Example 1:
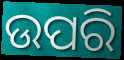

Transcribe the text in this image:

ଉପରି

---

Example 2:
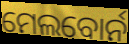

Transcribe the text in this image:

ମେଲବୋର୍ନ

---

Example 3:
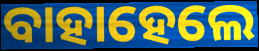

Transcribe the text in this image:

ବାହାହେଲେ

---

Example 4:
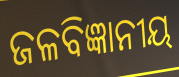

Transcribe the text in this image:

ଜଳବିଜ୍ଞାନୀୟ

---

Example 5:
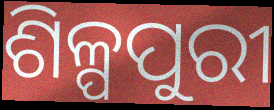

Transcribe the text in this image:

ଶିଳ୍ପପୁରୀ